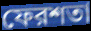
ফেরশতা